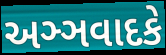
અઞ્ઞવાદકે